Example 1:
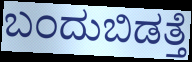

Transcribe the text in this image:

ಬಂದುಬಿಡತ್ತೆ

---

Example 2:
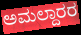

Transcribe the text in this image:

ಅಮಲ್ದಾರರ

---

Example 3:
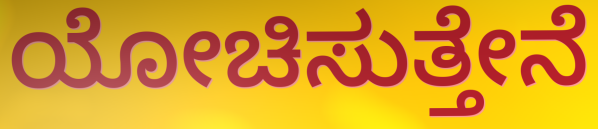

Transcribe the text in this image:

ಯೋಚಿಸುತ್ತೇನೆ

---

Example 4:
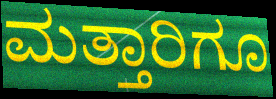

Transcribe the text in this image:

ಮತ್ತಾರಿಗೂ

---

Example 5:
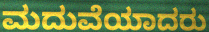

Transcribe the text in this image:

ಮದುವೆಯಾದರು